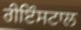
ਰੀਇੰਸਟਾਲ